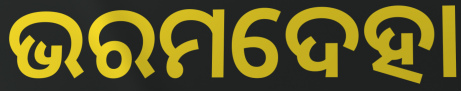
ଭରମଦେହା